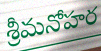
శ్రీమనోహర